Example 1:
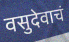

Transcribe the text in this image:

वसुदेवाचं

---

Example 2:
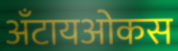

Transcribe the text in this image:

अँटायओकस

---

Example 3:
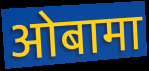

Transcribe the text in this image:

ओबामा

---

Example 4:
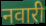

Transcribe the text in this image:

नवारी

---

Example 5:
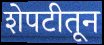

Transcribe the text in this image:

शेपटीतून